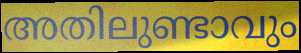
അതിലുണ്ടാവും